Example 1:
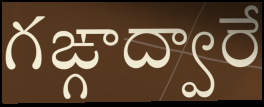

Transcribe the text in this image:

గఙ్గాద్వారే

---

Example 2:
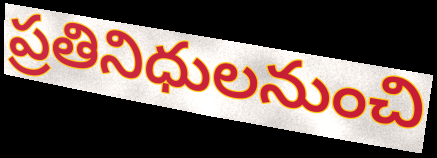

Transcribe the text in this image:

ప్రతినిధులనుంచి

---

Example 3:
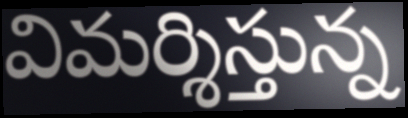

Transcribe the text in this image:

విమర్శిస్తున్న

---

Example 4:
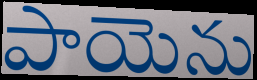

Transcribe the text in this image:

పాయెను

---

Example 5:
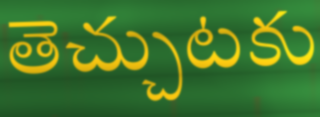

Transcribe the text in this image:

తెచ్చుటకు